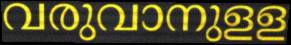
വരുവാനുളള